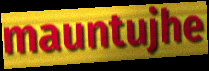
mauntujhe